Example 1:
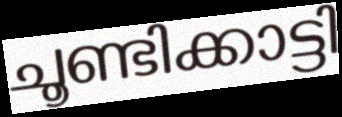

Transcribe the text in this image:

ചൂണ്ടിക്കാട്ടി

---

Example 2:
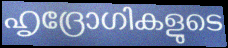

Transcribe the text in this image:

ഹൃദ്രോഗികളുടെ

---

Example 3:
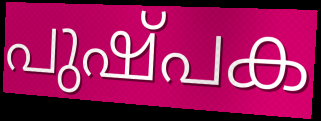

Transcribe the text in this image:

പുഷ്പക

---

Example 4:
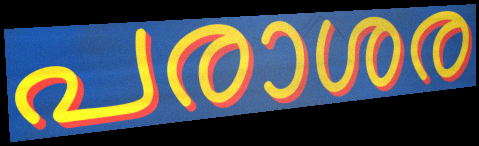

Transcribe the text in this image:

പരാശര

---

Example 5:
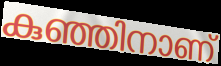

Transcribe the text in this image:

കുഞ്ഞിനാണ്